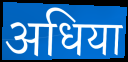
अधिया